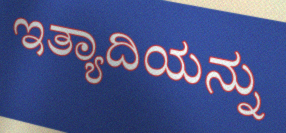
ಇತ್ಯಾದಿಯನ್ನು